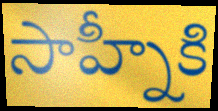
సాహ్నీకి